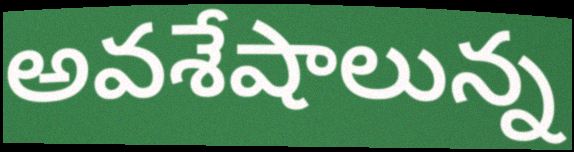
అవశేషాలున్న